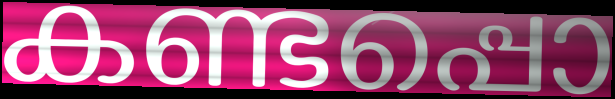
കണ്ടപ്പൊ